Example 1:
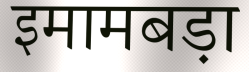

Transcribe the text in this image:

इमामबड़ा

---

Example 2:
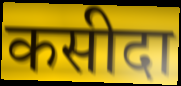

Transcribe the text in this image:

कसीदा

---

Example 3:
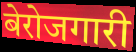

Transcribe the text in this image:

बेरोजगारी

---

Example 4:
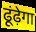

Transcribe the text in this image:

ढूंढ़ेगा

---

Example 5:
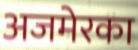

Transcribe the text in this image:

अजमेरका